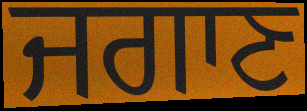
ਜਗਾਣ